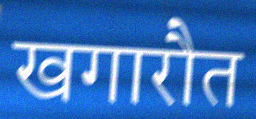
खगारौत